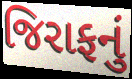
જિરાફનું